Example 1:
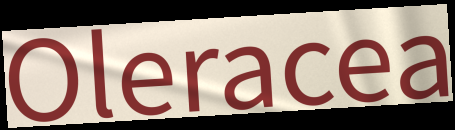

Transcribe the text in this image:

Oleracea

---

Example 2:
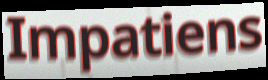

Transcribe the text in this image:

Impatiens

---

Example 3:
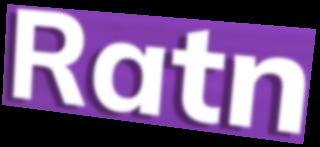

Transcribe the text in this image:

Ratn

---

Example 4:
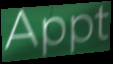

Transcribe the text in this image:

Appt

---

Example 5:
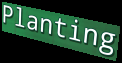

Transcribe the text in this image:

Planting